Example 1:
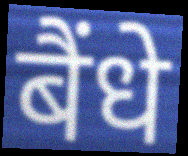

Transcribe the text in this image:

बैंधे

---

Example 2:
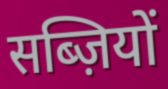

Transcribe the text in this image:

सब्ज़ियों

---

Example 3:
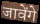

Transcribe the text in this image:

जावेंगे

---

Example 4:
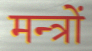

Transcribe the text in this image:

मन्त्रों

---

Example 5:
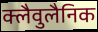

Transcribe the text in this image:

क्लैवुलैनिक